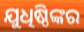
ଯୁଧିଷ୍ଠିଙ୍କର